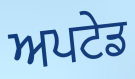
ਅਪਟੇਡ